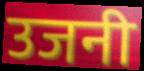
उजनी